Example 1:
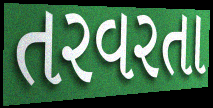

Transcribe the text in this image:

તરવરતા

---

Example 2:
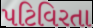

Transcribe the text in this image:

પટિવિરતા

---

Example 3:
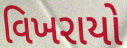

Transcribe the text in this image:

વિખરાયો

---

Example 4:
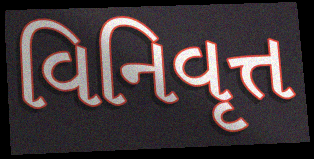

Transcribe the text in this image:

વિનિવૃત્ત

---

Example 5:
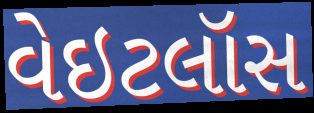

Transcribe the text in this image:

વેઇટલૉસ